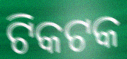
ଟିକଟକ